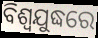
ବିଶ୍ବଯୁଦ୍ଧରେ